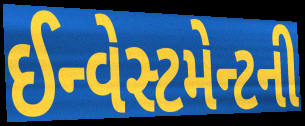
ઈન્વેસ્ટમેન્ટની